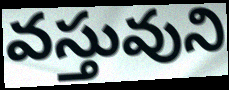
వస్తువుని